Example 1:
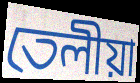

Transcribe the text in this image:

তেলীয়া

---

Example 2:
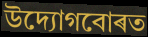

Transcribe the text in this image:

উদ্যোগবোৰত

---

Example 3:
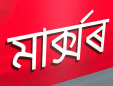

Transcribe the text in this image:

মাৰ্ক্সৰ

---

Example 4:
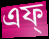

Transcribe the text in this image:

এফ্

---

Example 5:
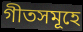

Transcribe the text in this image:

গীতসমূহে